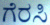
ಗೆರಸಿ